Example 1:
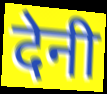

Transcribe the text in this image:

देनी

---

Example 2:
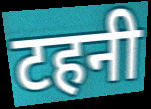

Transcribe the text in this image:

टहनी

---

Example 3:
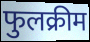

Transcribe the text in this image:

फुलक्रीम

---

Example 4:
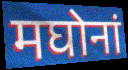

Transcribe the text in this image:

मघोनां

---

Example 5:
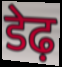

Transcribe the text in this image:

डेढ़